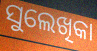
ସୁଲେଖିକା